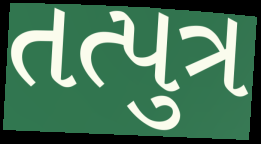
તત્પુત્ર